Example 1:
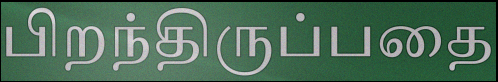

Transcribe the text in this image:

பிறந்திருப்பதை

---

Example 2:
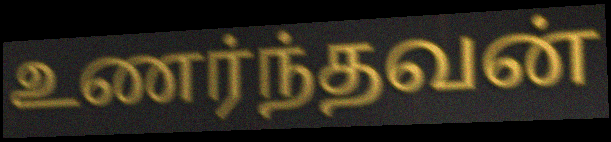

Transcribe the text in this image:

உணர்ந்தவன்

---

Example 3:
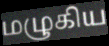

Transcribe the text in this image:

மழுகிய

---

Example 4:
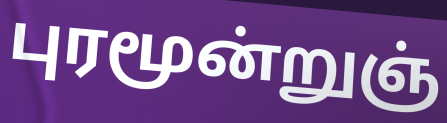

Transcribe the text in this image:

புரமூன்றுஞ்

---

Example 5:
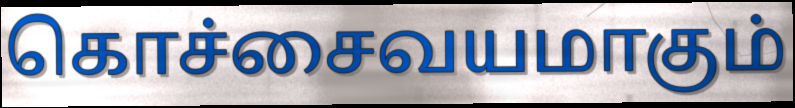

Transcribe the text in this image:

கொச்சைவயமாகும்